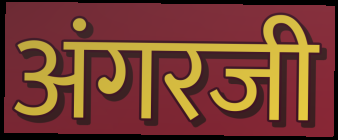
अंगरजी